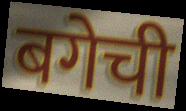
बगेची